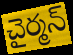
చైర్మన్